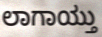
ಲಾಗಾಯ್ತು